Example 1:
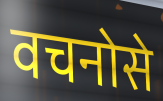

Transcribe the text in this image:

वचनोसे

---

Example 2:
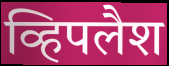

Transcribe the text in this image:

व्हिपलैश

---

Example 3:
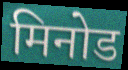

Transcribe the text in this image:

मिनोड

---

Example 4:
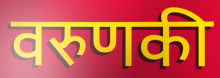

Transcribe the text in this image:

वरुणकी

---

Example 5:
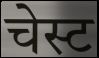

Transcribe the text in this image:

चेस्ट